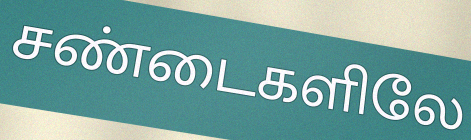
சண்டைகளிலே